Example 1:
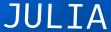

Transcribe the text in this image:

JULIA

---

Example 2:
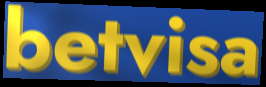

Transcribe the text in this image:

betvisa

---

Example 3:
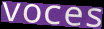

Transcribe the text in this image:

voces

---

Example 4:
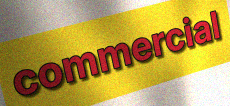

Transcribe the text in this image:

commercial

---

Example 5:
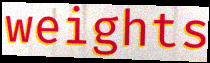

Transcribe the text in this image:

weights